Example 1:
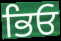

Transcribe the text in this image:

ਭਿਓ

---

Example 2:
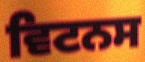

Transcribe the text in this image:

ਵਿਟਨਸ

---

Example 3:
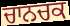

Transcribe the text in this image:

ਚਾਨਚਕ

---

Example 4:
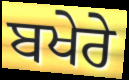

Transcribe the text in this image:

ਬਖੇਰੇ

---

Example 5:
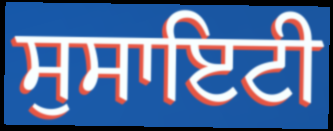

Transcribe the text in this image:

ਸੁਸਾਇਟੀ